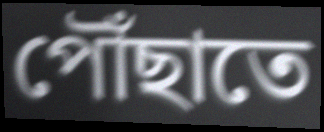
পৌঁছাতে